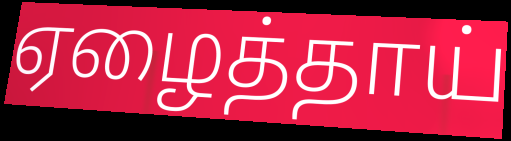
ஏழைத்தாய்